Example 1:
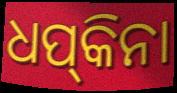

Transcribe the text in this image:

ଧପ୍‍କିନା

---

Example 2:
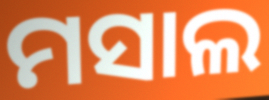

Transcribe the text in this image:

ମସାଲ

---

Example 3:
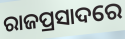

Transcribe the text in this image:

ରାଜପ୍ରସାଦରେ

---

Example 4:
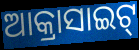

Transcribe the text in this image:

ଆକ୍ରାସାଇଟ୍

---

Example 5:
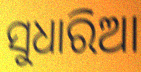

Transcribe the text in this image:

ସୁଧାରିଆ